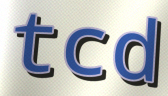
tcd